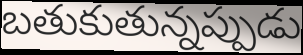
బతుకుతున్నప్పుడు